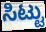
ಸಿಟ್ಟು